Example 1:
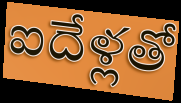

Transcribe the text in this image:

ఐదేళ్లతో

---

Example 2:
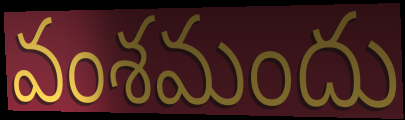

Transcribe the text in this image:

వంశమందు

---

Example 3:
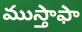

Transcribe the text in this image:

ముస్తాఫా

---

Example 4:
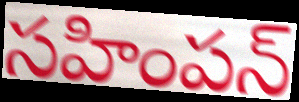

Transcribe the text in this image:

సహింపన్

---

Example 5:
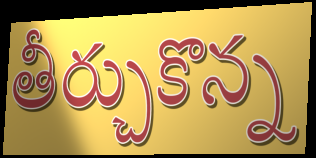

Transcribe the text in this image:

తీర్చుకొన్న